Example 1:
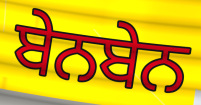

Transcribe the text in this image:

ਬੇਨਬੇਨ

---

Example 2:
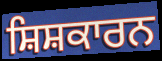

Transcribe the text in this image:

ਸ਼ਿਸ਼ਕਾਰਨ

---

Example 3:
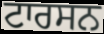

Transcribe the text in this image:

ਟਾਰਸਨ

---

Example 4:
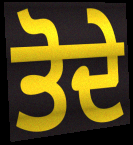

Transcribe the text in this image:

ਤੋਦੇ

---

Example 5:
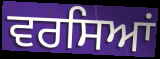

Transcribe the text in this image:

ਵਰਸਿਆਂ